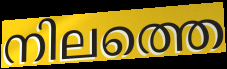
നിലത്തെ